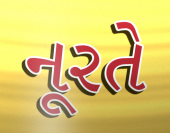
નૂરતે